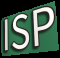
ISP